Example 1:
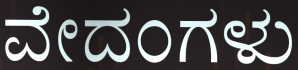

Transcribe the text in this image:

ವೇದಂಗಳು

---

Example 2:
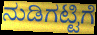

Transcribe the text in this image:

ನುಡಿಗಟ್ಟಿಗೆ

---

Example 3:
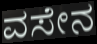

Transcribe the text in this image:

ವಸೇನ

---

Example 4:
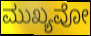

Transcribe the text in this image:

ಮುಖ್ಯವೋ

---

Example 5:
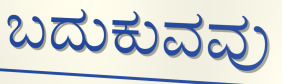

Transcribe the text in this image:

ಬದುಕುವವು